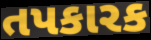
તપકારક